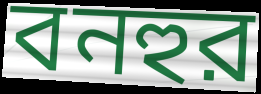
বনহুর